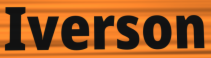
Iverson